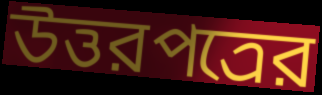
উত্তরপত্রের